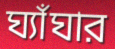
ঘ্যাঁঘার